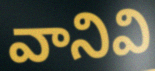
వానివి